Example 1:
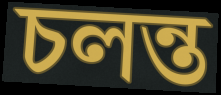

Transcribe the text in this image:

চলন্ত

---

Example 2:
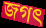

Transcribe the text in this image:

জগৎ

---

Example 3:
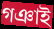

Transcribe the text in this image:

গঞাই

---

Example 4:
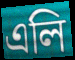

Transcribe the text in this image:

এলি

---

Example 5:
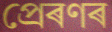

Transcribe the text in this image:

প্ৰেৰণৰ